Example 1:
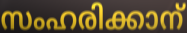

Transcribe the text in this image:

സംഹരിക്കാന്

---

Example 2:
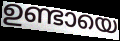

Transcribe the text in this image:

ഉണ്ടായെ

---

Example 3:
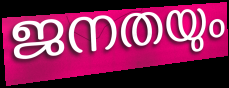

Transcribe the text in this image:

ജനതയും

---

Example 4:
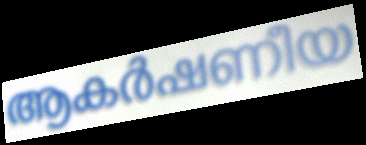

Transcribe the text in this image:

ആകർഷണീയ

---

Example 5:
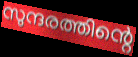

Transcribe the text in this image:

സുന്ദരത്തിന്റെ